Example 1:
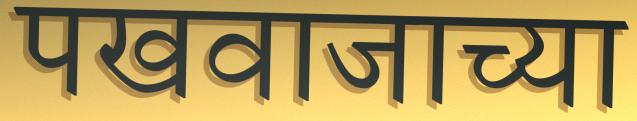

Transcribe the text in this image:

पखवाजाच्या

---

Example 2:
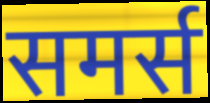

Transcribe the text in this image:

समर्स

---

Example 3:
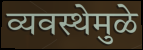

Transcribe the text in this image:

व्यवस्थेमुळे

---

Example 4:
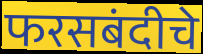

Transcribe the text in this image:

फरसबंदीचे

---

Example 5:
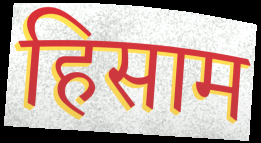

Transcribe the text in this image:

हिसाम